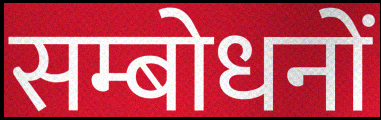
सम्बोधनों